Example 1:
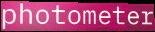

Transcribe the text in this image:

photometer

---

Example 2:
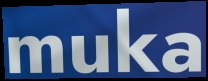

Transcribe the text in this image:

muka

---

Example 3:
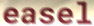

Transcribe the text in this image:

easel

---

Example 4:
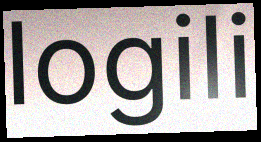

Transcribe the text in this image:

logili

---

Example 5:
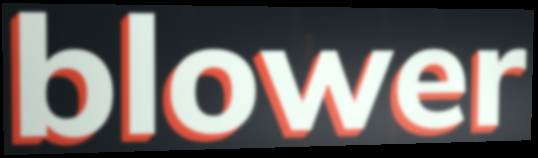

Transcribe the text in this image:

blower